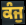
ਕੰਜੁ